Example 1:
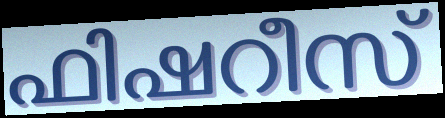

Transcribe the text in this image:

ഫിഷറീസ്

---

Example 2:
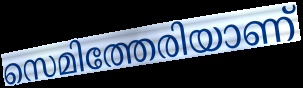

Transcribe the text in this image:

സെമിത്തേരിയാണ്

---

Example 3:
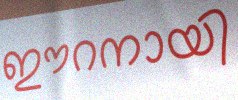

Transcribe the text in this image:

ഈറനായി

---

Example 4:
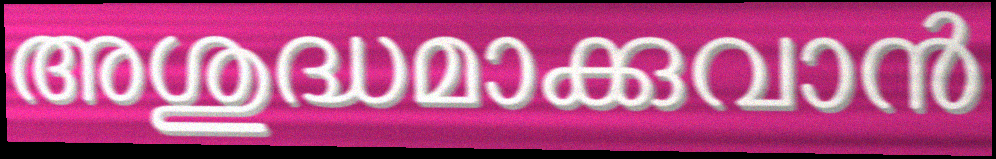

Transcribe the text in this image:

അശുദ്ധമാക്കുവാൻ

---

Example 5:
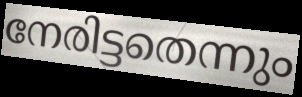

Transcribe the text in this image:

നേരിട്ടതെന്നും